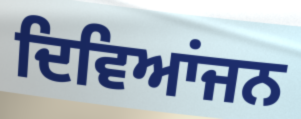
ਦਿਵਿਆਂਜਨ